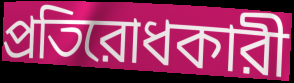
প্রতিরোধকারী